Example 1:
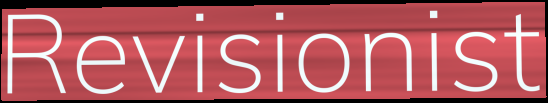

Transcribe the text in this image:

Revisionist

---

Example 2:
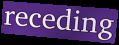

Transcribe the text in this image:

receding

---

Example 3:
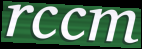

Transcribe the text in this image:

rccm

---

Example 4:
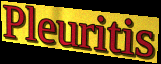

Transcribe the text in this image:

Pleuritis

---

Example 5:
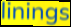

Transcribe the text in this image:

linings